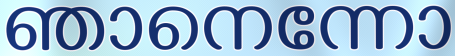
ഞാനെന്നോ